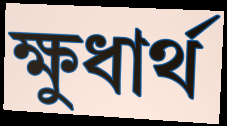
ক্ষুধার্থ